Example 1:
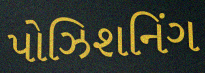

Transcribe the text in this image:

પોઝિશનિંગ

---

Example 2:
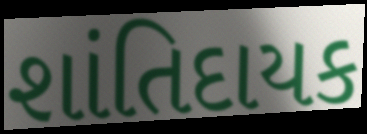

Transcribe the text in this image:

શાંતિદાયક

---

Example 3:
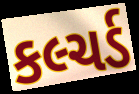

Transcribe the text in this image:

કલ્ચર્ડ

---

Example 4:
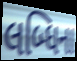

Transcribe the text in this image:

લબ્ધિના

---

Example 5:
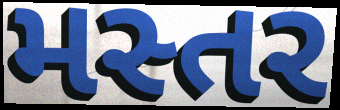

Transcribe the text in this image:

મસ્તર